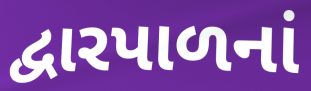
દ્વારપાળનાં